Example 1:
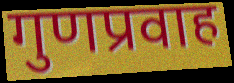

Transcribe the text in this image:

गुणप्रवाह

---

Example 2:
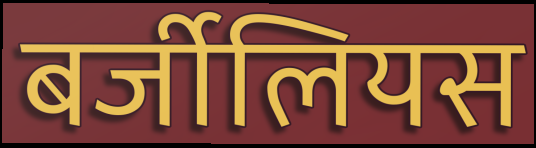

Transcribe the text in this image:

बर्जीलियस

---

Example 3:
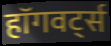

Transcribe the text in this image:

हॉगवर्ट्स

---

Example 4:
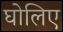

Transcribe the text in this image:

घोलिए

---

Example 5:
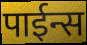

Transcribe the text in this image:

पाईन्स